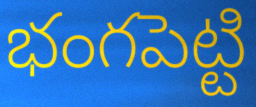
భంగపెట్టి